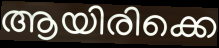
ആയിരിക്കെ